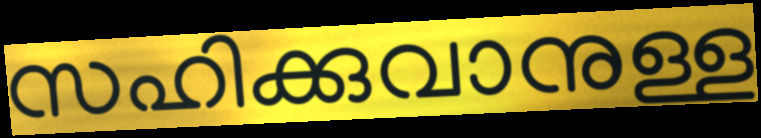
സഹിക്കുവാനുള്ള